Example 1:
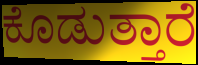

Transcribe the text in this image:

ಕೊಡುತ್ತಾರೆ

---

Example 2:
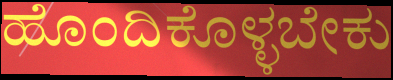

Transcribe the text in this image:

ಹೊಂದಿಕೊಳ್ಳಬೇಕು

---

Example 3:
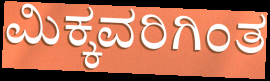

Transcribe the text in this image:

ಮಿಕ್ಕವರಿಗಿಂತ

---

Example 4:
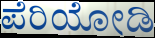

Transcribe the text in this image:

ಪೆರಿಯೋಡಿ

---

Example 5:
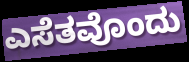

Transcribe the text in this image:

ಎಸೆತವೊಂದು